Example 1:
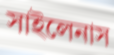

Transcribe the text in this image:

সাইলেনাস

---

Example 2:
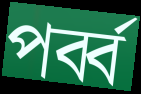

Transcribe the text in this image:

পর্ব্ব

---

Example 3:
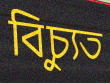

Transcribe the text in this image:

বিচ্যুত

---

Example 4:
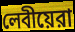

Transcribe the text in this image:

লেবীয়েরা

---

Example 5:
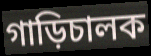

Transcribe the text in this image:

গাড়িচালক